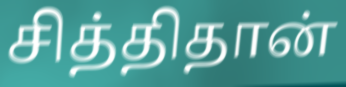
சித்திதான்